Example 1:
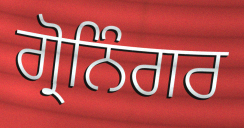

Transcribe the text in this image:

ਗ੍ਰੋਨਿੰਗਰ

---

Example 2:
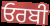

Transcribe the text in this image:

ਓਰਬੀ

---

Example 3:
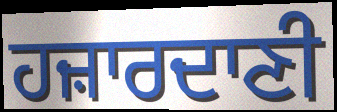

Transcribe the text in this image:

ਹਜ਼ਾਰਦਾਣੀ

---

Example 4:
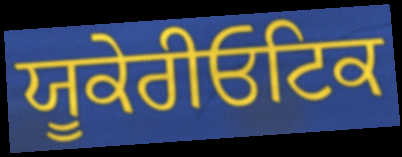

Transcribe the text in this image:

ਯੂਕੇਰੀਓਟਿਕ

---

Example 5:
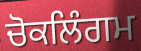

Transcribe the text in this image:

ਚੋਕਲਿੰਗਮ